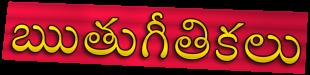
ఋతుగీతికలు